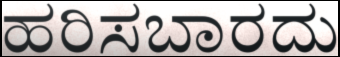
ಹರಿಸಬಾರದು